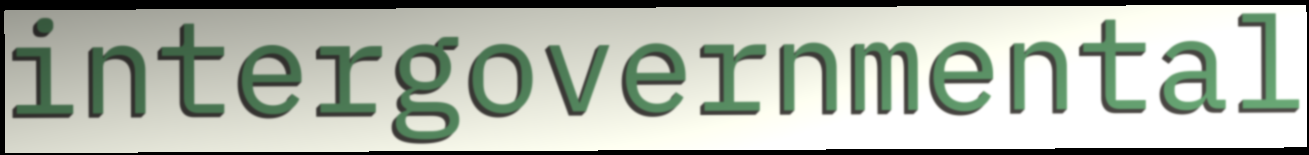
intergovernmental